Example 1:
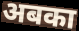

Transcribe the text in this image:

अबका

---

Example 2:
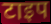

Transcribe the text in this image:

टाइप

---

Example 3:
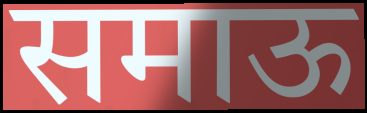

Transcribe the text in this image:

समाऊ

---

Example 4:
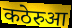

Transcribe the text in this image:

कठेरुआ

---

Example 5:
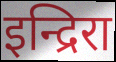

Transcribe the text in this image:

इन्द्रिरा